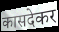
कासदेकर